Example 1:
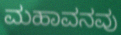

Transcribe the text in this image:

ಮಹಾವನವು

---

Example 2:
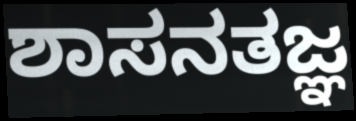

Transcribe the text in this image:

ಶಾಸನತಜ್ಞ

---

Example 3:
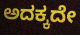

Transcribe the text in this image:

ಅದಕ್ಕದೇ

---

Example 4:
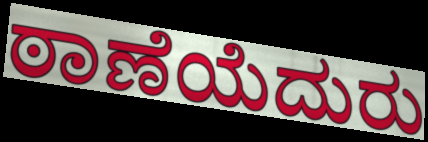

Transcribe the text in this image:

ಠಾಣೆಯೆದುರು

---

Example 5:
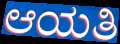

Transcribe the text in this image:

ಆಯತಿ